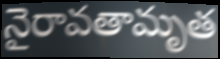
నైరావతామృత